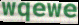
wqewe